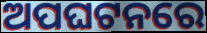
ଅପଘଟନରେ